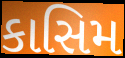
કાસિમ